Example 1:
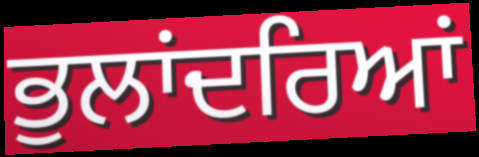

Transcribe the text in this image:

ਭੁਲਾਂਦਰਿਆਂ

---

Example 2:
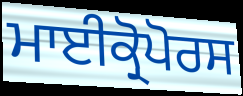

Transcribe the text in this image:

ਮਾਈਕ੍ਰੋਪੋਰਸ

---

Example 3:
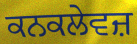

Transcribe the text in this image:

ਕਨਕਲੇਵਜ਼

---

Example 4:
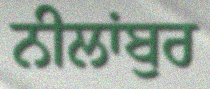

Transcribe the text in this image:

ਨੀਲਾਂਬੁਰ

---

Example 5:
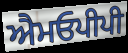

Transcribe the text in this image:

ਐਮਓਪੀਪੀ